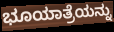
ಭೂಯಾತ್ರೆಯನ್ನು